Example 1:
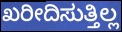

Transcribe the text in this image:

ಖರೀದಿಸುತ್ತಿಲ್ಲ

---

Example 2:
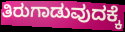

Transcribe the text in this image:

ತಿರುಗಾಡುವುದಕ್ಕೆ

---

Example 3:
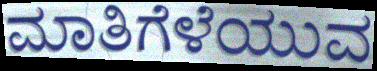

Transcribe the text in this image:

ಮಾತಿಗೆಳೆಯುವ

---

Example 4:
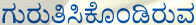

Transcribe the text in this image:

ಗುರುತಿಸಿಕೊಂಡಿರುವ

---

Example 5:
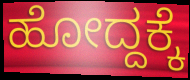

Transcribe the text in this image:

ಹೋದ್ದಕ್ಕೆ